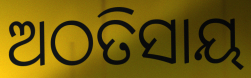
ଅଠତିସାୟ